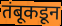
तंबूकडून